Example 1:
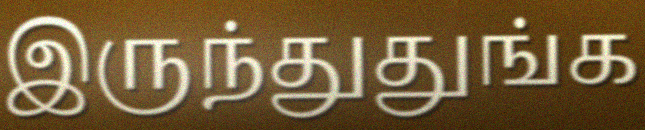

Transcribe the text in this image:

இருந்துதுங்க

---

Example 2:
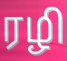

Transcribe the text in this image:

ரழி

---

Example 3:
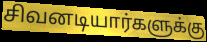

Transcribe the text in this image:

சிவனடியார்களுக்கு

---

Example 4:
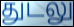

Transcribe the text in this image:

துடலு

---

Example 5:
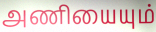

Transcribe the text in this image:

அணியையும்